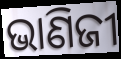
ଭାଣିଜୀ